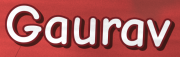
Gaurav